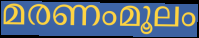
മരണംമൂലം